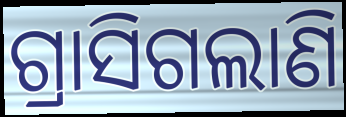
ଗ୍ରାସିଗଲାଣି